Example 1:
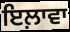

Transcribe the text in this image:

ਇਲ਼ਾਵਾ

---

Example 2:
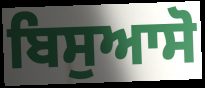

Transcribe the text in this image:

ਬਿਸੁਆਸੋ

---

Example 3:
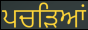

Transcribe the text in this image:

ਪਚੜਿਆਂ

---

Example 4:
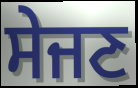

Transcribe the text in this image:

ਸੇਜਣ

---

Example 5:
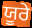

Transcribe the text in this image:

ਯੂਰੇ